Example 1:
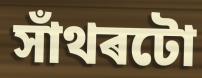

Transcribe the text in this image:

সাঁথৰটো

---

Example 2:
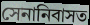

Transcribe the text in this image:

সেনানিবাসত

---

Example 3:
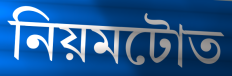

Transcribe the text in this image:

নিয়মটোত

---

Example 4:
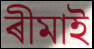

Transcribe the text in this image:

ৰীমাই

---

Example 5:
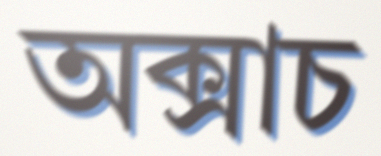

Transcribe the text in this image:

অক্সাচ